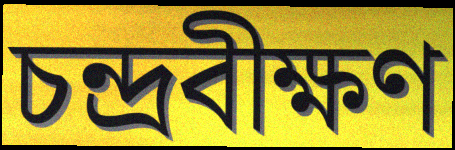
চন্দ্রবীক্ষণ